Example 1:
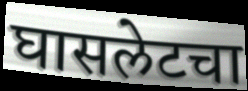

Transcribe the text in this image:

घासलेटचा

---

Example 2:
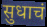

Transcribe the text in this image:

सुधाचं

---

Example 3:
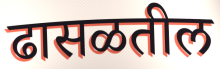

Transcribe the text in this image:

ढासळतील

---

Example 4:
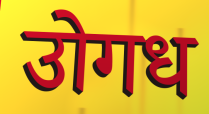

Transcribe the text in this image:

उोगध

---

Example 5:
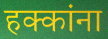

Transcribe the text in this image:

हक्कांना